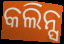
କଲିନ୍ସ